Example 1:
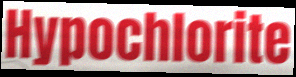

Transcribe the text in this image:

Hypochlorite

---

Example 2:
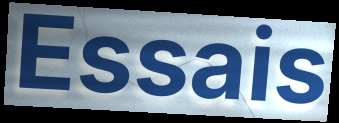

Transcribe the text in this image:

Essais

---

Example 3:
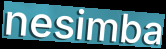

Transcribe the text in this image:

nesimba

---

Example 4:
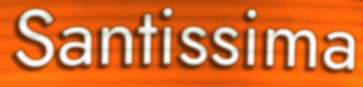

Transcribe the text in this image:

Santissima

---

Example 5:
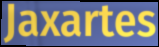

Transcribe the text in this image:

Jaxartes